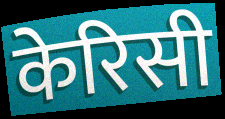
केरिसी